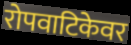
रोपवाटिकेवर